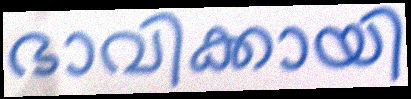
ഭാവിക്കായി